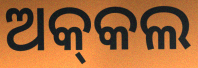
ଅକ୍‍କଲ